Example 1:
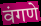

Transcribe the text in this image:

वंगणे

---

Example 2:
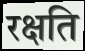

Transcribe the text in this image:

रक्षति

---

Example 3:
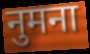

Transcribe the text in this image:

नुमना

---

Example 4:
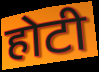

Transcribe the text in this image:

होटी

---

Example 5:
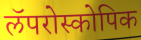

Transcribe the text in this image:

लॅपरोस्कोपिक